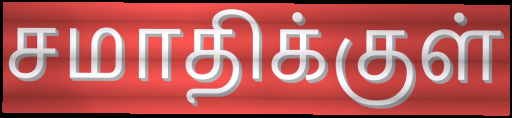
சமாதிக்குள்